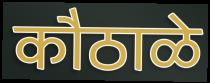
कौठाळे